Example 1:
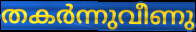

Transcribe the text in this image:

തകർന്നുവീണു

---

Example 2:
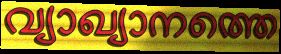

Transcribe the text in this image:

വ്യാഖ്യാനത്തെ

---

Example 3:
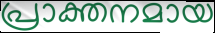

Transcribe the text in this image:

പ്രാക്തനമായ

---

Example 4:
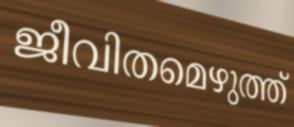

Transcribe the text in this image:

ജീവിതമെഴുത്ത്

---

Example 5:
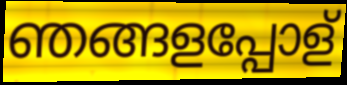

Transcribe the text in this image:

ഞങ്ങളപ്പോള്